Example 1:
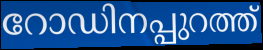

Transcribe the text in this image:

റോഡിനപ്പുറത്ത്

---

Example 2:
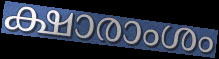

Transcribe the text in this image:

ക്ഷാരാംശം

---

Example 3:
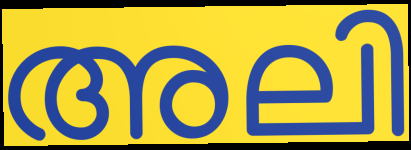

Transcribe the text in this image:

അലി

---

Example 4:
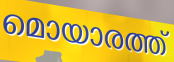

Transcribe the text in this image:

മൊയാരത്ത്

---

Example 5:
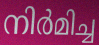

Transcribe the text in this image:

നിർമിച്ച